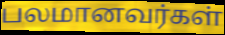
பலமானவர்கள்